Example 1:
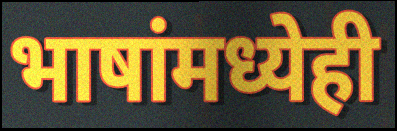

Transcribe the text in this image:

भाषांमध्येही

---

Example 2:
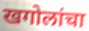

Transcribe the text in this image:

खगोलांचा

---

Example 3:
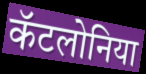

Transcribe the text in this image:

कॅटलोनिया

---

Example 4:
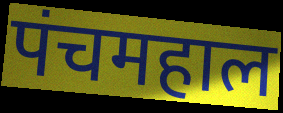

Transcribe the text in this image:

पंचमहाल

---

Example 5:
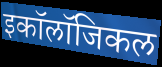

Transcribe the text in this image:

इकॉलॉजिकल